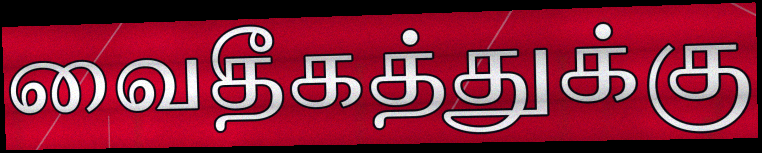
வைதீகத்துக்கு